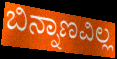
ಬಿನ್ನಾಣವಿಲ್ಲ